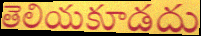
తెలియకూడదు